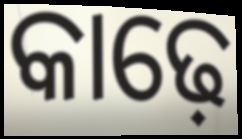
କାଢ଼େ